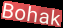
Bohak